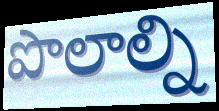
పొలాల్ని